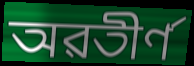
অৱতীৰ্ণ